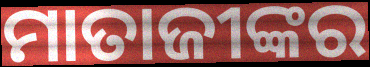
ମାତାଜୀଙ୍କର